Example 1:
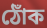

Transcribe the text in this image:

ঠোঁক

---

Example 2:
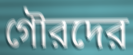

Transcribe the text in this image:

গৌরদের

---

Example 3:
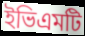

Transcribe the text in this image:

ইভিএমটি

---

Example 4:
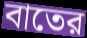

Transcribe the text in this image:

বাতের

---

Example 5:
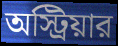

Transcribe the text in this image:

অস্ট্রিয়ার